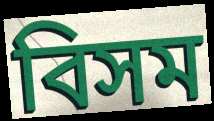
বিসম